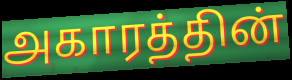
அகாரத்தின்